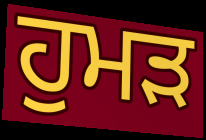
ਹੁਮੜ